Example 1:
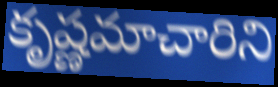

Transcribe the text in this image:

కృష్ణమాచారిని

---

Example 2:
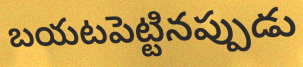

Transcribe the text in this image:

బయటపెట్టినప్పుడు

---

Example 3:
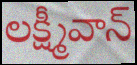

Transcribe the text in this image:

లక్ష్మీవాన్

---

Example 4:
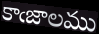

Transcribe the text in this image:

కాఁజాలము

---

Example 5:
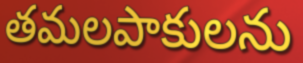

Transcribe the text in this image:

తమలపాకులను